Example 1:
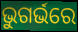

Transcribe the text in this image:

ଭୁଗର୍ଭରେ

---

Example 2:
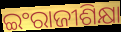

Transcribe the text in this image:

ଇଂରାଜୀଶିକ୍ଷା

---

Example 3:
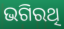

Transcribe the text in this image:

ଭଗିରଥି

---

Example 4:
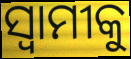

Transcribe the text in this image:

ସ୍ୱାମୀକୁ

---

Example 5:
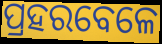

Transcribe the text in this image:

ପ୍ରହରବେଳେ